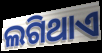
ଲଗିଥାଏ